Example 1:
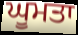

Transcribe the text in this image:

ਘੂਮਤਾ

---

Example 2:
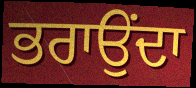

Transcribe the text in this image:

ਭਰਾਉਂਦਾ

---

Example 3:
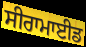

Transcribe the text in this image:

ਸੀਰਾਮਾਈਡ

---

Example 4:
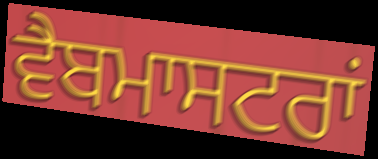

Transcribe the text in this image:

ਵੈਬਮਾਸਟਰਾਂ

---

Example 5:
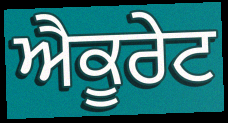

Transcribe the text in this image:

ਐਕੂਰੇਟ